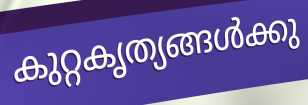
കുറ്റകൃത്യങ്ങൾക്കു